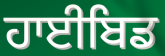
ਹਾਈਬਿਡ